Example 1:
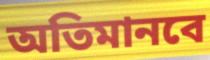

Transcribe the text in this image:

অতিমানবে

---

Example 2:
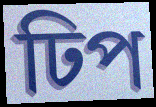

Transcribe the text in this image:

ঢিপ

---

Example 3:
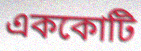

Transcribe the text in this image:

এককোটি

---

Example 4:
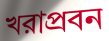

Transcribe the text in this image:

খরাপ্রবন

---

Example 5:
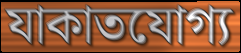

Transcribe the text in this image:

যাকাতযোগ্য